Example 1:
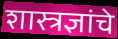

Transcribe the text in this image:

शास्त्रज्ञांचे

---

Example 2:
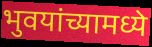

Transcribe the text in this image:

भुवयांच्यामध्ये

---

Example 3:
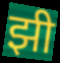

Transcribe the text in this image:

झी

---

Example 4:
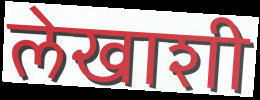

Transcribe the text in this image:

लेखाशी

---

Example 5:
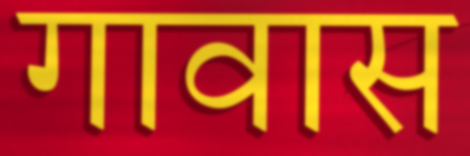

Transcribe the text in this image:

गावास